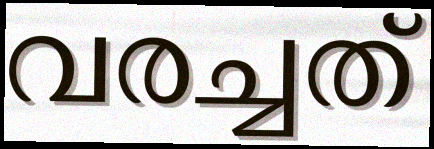
വരച്ചത്